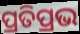
ପ୍ରତିପ୍ରଭ